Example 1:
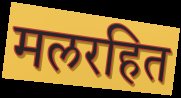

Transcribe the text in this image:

मलरहित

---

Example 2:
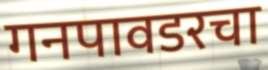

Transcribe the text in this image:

गनपावडरचा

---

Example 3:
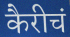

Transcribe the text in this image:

कैरीचं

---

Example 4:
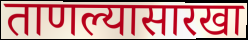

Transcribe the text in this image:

ताणल्यासारखा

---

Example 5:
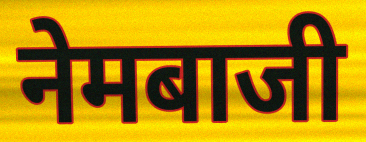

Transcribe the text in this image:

नेमबाजी